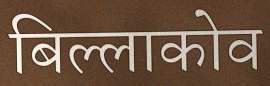
बिल्लाकोव